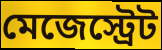
মেজেস্ট্রেট